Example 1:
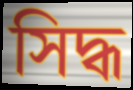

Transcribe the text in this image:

সিদ্ধ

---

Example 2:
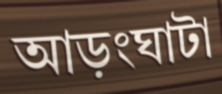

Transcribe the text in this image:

আড়ংঘাটা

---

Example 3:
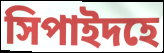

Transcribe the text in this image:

সিপাইদহে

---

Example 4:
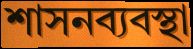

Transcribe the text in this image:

শাসনব্যবস্থা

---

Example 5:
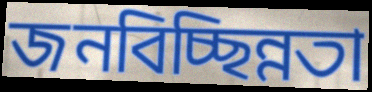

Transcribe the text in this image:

জনবিচ্ছিন্নতা